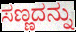
ಸಣ್ಣದನ್ನು